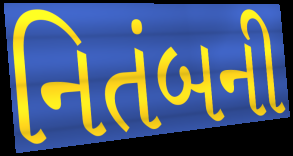
નિતંબની